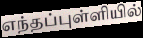
எந்தப்புள்ளியில்